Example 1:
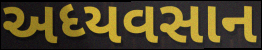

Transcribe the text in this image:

અધ્યવસાન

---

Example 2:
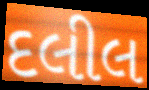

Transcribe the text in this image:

દલીલ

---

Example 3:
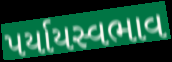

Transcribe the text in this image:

પર્યાયસ્વભાવ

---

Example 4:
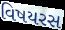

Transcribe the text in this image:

વિષયરસ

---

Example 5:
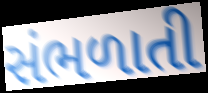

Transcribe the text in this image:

સંભળાતી